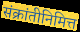
संक्रांतीनिमित्त